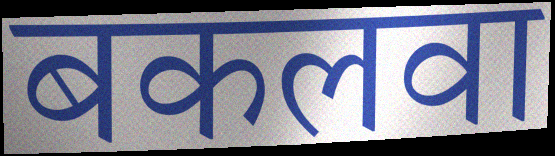
बकलवा